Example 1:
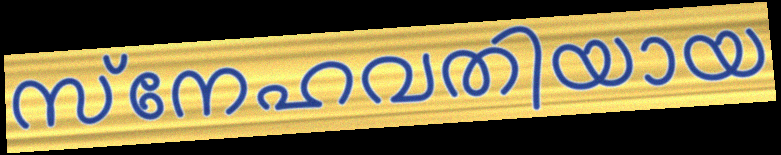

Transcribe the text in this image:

സ്‌നേഹവതിയായ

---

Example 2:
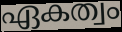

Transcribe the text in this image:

ഏകത്വം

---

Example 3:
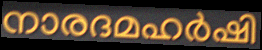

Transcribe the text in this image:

നാരദമഹർഷി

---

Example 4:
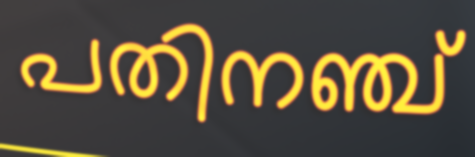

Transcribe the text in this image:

പതിനഞ്ച്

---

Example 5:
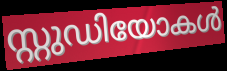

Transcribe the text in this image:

സ്റ്റുഡിയോകൾ